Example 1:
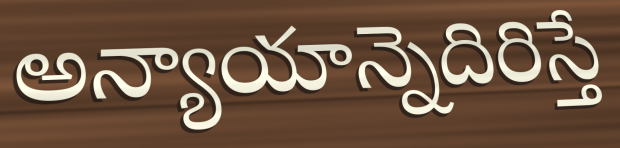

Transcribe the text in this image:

అన్యాయాన్నెదిరిస్తే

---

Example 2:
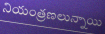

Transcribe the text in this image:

నియంత్రణలున్నాయి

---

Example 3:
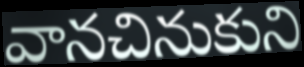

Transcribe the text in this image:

వానచినుకుని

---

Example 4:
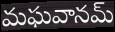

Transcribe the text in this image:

మఘవానమ్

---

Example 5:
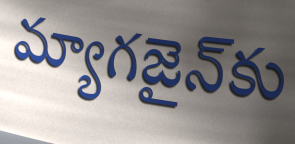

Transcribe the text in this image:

మ్యాగజైన్‌కు